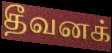
தீவனக்